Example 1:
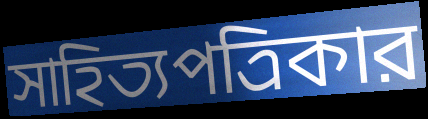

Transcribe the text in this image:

সাহিত্যপত্রিকার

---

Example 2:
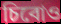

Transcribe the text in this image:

চিবোও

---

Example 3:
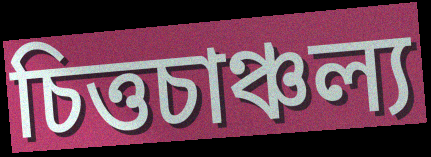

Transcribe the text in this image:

চিত্তচাঞ্চল্য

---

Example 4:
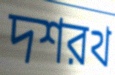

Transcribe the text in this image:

দশরথ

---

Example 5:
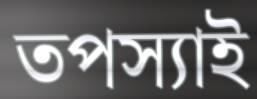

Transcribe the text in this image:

তপস্যাই